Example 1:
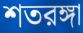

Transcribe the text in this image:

শতরঙ্গা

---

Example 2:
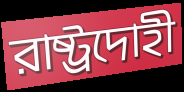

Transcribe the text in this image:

রাষ্ট্রদোহী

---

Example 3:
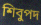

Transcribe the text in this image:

শিবুপদ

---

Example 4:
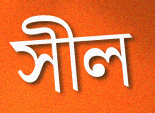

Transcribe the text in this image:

সীল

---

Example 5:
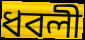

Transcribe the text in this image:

ধবলী